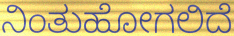
ನಿಂತುಹೋಗಲಿದೆ